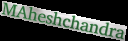
MAheshchandra